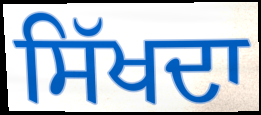
ਸਿੱਖਦਾ